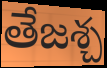
తేజశ్చ